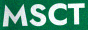
MSCT